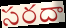
సరదా